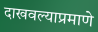
दाखवल्याप्रमाणे